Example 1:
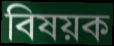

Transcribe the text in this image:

বিষয়ক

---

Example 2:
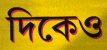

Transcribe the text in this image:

দিকেও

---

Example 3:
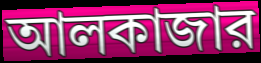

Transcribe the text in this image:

আলকাজার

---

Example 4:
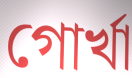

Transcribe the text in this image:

গোর্খা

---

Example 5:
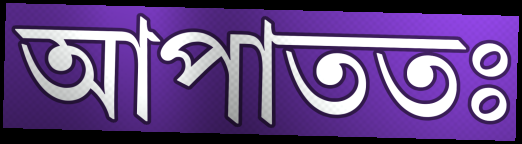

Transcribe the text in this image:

আপাততঃ